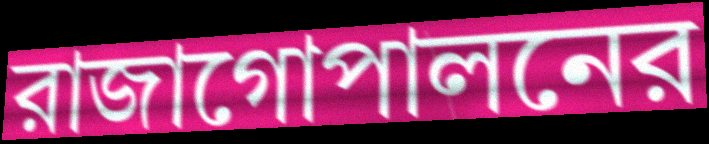
রাজাগোপালনের